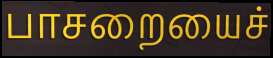
பாசறையைச்